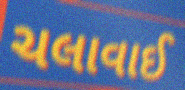
ચલાવાઈ